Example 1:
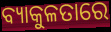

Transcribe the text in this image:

ବ୍ୟାକୁଳତାରେ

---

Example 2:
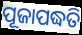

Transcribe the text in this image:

ପୂଜାପଦ୍ଧତି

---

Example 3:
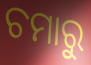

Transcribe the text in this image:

ଚମାରୁ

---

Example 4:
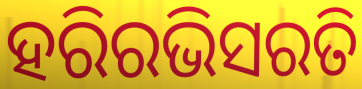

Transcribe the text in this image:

ହରିରଭିସରତି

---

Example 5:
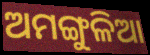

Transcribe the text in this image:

ଅମଙ୍ଗୁଳିଆ